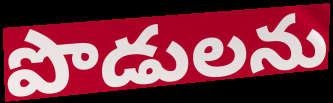
పొడులను